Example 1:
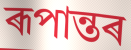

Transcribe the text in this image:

ৰূপান্তৰ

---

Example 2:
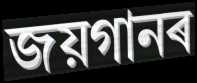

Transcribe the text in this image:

জয়গানৰ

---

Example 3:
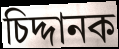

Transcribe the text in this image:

চিদ্দানক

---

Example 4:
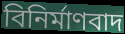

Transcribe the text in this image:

বিনিৰ্মাণবাদ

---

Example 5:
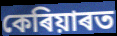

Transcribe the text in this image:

কেৰিয়াৰত